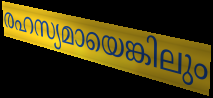
രഹസ്യമായെങ്കിലും